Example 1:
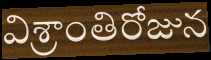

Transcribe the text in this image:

విశ్రాంతిరోజున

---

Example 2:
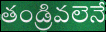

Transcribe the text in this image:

తండ్రివలెనే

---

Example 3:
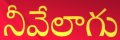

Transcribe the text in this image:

నీవేలాగు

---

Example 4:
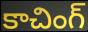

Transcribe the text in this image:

కాచింగ్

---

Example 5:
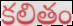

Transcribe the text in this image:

కలితం